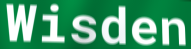
Wisden